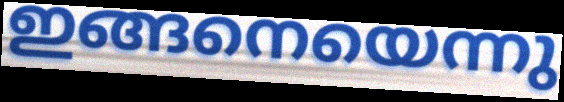
ഇങ്ങനെയെന്നു